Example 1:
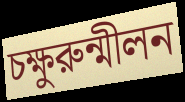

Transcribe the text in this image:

চক্ষুরুন্মীলন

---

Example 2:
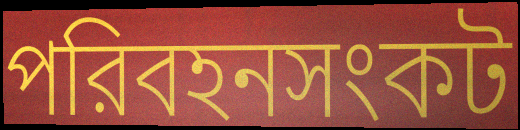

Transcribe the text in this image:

পরিবহনসংকট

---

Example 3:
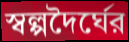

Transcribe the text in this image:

স্বল্পদৈর্ঘের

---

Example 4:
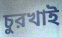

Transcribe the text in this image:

চুরখাই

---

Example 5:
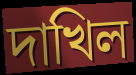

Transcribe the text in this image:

দাখিল